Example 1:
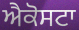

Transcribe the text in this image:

ਐਕੋਸਟਾ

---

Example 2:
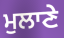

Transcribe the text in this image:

ਮੁਲਾਣੇ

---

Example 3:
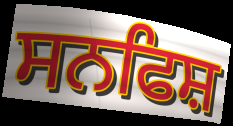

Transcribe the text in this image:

ਸਨਫਿਸ਼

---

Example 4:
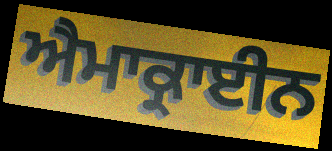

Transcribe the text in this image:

ਐਮਾਕ੍ਰਾਈਨ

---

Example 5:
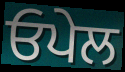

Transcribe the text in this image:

ਓਪੇਲ